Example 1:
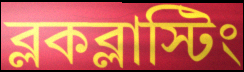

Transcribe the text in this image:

ব্লকব্লাস্টিং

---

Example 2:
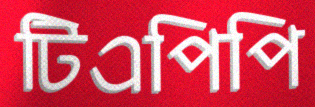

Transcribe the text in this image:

টিএপিপি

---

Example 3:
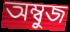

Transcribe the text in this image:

অম্বুজ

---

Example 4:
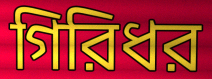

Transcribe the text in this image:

গিরিধর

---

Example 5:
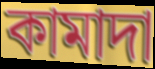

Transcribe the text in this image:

কামাদা